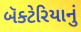
બૅક્ટેરિયાનું